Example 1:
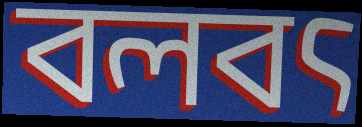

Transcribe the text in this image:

বলবৎ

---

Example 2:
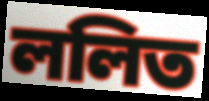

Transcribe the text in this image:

ললিত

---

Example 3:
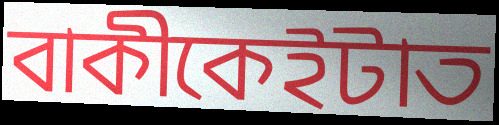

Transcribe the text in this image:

বাকীকেইটাত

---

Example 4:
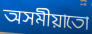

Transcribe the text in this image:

অসমীয়াতো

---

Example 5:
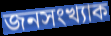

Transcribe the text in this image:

জনসংখ্যাক